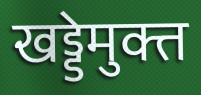
खड्डेमुक्त